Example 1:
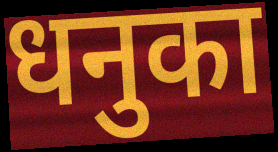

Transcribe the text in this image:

धनुका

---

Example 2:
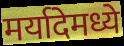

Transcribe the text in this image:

मर्यादेमध्ये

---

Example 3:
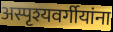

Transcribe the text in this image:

अस्पृश्यवर्गीयांना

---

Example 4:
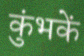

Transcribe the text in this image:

कुंभकें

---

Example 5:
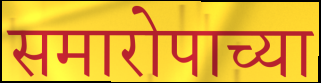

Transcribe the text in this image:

समारोपाच्या